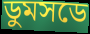
ডুমসডে